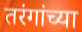
तरंगांच्या